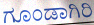
ಗೂಂಡಾಗಿರಿ